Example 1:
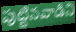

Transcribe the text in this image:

పుట్టినవాడిని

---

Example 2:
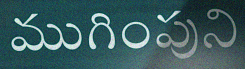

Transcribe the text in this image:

ముగింపుని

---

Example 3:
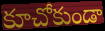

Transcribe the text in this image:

కూచోకుండా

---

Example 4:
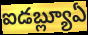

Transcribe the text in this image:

ఐడబ్ల్యూఏ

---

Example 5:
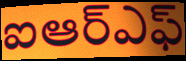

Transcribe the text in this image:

ఐఆర్ఎఫ్